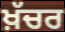
ਖ਼ੱਚਰ